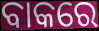
ବାକରେ